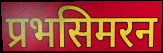
प्रभसिमरन